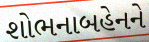
શોભનાબહેનને